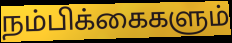
நம்பிக்கைகளும்